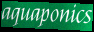
aquaponics